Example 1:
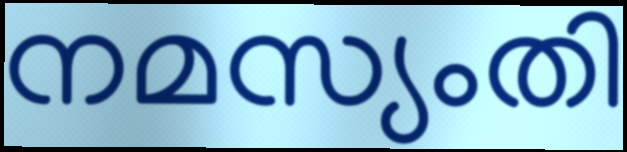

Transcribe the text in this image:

നമസ്യംതി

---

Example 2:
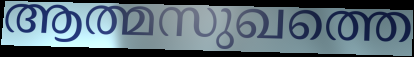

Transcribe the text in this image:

ആത്മസുഖത്തെ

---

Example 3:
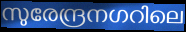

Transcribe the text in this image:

സുരേന്ദ്രനഗറിലെ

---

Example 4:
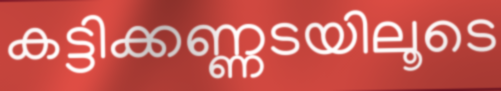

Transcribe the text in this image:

കട്ടിക്കണ്ണടയിലൂടെ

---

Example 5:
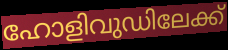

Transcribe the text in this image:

ഹോളിവുഡിലേക്ക്